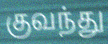
குவந்து